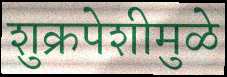
शुक्रपेशीमुळे